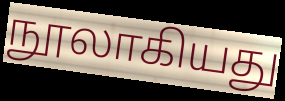
நூலாகியது